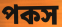
পকস